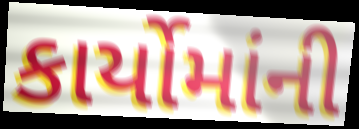
કાર્યોમાંની